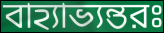
বাহ্যাভ্যন্তরঃ